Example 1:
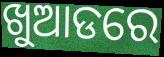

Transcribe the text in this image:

ଖୁଆଡରେ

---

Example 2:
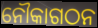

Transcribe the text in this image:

ନୌକାଗଠନ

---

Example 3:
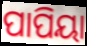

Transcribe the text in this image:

ପାପିୟା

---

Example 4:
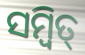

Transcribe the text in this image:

ସମ୍ବିତ୍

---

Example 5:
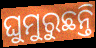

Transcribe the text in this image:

ଘୁମୁରୁଛନ୍ତି